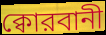
ক্বোরবানী